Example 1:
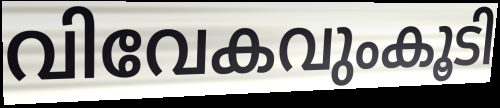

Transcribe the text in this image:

വിവേകവുംകൂടി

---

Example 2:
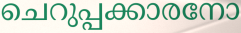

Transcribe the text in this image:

ചെറുപ്പക്കാരനോ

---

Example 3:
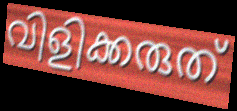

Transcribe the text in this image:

വിളിക്കരുത്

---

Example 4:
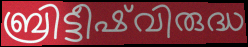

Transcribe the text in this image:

ബ്രിട്ടീഷ്‌വിരുദ്ധ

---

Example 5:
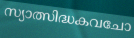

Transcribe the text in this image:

സ്യാത്സിദ്ധകവചോ